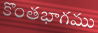
కొంతభాగము